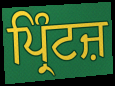
ਪ੍ਰਿੰਟਜ਼